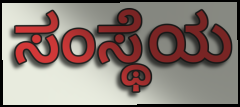
ಸಂಸ್ಥೆಯ